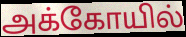
அக்கோயில்